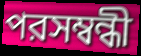
পরসম্বন্ধী